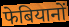
फेबियानों